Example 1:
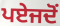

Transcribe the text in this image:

ਪਏਜਦੋਂ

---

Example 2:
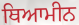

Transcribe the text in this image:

ਥਿਆਮੀਨ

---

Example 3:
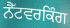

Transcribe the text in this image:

ਨੈੱਟਵਰਕਿੰਗ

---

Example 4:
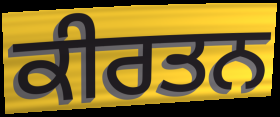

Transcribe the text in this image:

ਕੀਰਤਨ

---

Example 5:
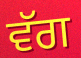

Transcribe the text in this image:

ਵੱਗ